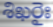
శిఖరైః